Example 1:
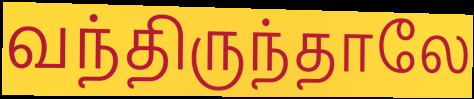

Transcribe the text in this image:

வந்திருந்தாலே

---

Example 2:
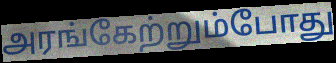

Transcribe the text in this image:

அரங்கேற்றும்போது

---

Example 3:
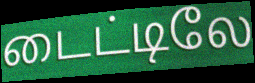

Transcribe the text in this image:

டைட்டிலே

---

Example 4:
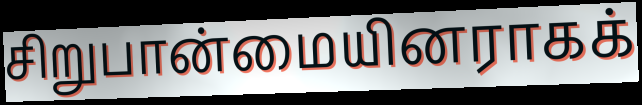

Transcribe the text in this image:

சிறுபான்மையினராகக்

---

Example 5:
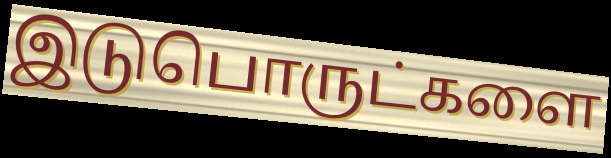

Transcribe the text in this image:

இடுபொருட்களை